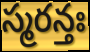
స్మరన్తః